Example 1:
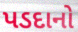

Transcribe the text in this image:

પડદાનો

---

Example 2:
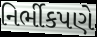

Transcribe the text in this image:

નિર્ભીકપણે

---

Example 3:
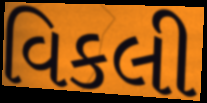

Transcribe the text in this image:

વિકલી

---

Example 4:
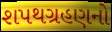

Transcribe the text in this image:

શપથગ્રહણનો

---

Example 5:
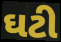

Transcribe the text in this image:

ઘટી